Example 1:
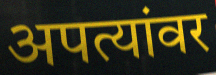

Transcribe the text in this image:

अपत्यांवर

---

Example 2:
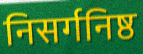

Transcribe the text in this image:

निसर्गनिष्ठ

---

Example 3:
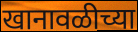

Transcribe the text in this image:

खानावळीच्या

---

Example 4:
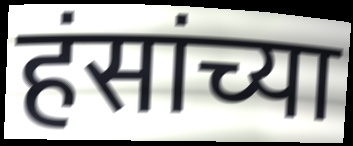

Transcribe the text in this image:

हंसांच्या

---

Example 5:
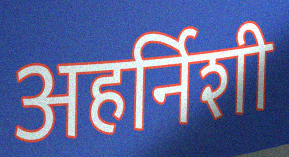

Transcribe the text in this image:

अहर्निशी